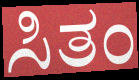
ಸಿತಂ